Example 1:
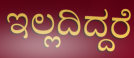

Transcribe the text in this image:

ಇಲ್ಲದಿದ್ದರೆ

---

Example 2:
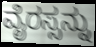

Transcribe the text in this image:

ವೈರಸ್ಸನ್ನು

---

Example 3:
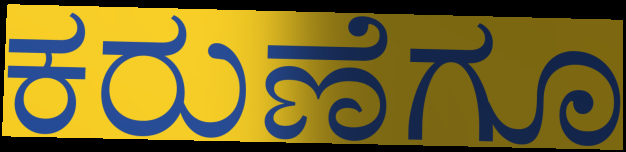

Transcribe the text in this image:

ಕರುಣೆಗೂ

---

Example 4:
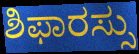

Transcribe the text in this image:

ಶಿಫಾರಸ್ಸು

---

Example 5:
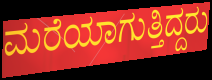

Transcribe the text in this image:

ಮರೆಯಾಗುತ್ತಿದ್ದರು